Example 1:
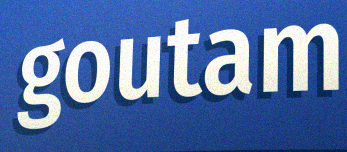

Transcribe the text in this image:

goutam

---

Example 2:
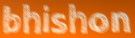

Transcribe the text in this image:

bhishon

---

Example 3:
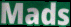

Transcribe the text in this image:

Mads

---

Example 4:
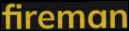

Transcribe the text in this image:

fireman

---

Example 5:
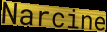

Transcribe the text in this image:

Narcine